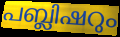
പബ്ലിഷറും